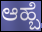
ಆಹ್ಬೆ